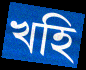
খহি